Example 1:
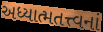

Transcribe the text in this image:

અધ્યાત્મતત્ત્વનાં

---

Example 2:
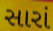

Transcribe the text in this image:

સારાં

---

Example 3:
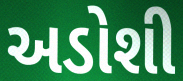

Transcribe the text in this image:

અડોશી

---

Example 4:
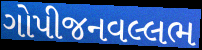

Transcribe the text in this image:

ગોપીજનવલ્લભ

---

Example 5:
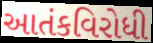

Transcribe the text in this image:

આતંકવિરોધી